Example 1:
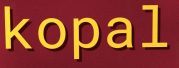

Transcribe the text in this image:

kopal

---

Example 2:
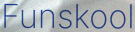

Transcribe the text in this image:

Funskool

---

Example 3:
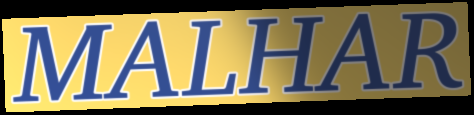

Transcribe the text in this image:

MALHAR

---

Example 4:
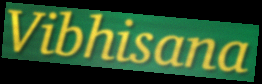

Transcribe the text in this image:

Vibhisana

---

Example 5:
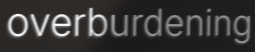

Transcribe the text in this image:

overburdening